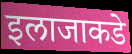
इलाजाकडे